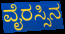
ವೈರಸ್ಸಿನ